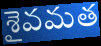
శైవమత